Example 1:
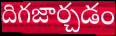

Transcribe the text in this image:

దిగజార్చడం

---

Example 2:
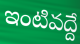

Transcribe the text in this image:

ఇంటివద్దే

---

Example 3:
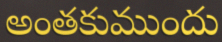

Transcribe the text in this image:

అంతకుముందు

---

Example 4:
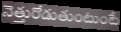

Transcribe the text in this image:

నెత్తురోడుతుంటుంటే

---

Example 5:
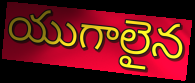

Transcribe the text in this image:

యుగాలైన